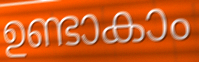
ഉണ്ടാകാം